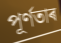
পূৰ্ণতাৰ